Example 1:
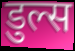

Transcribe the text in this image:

डुल्स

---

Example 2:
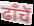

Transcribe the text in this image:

ढाँचें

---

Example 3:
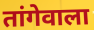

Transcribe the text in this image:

तांगेवाला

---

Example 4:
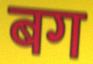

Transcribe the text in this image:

बग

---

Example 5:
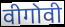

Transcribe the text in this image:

वीगोवी